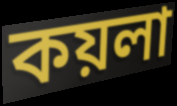
কয়লা